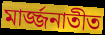
মার্জ্জনাতীত